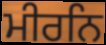
ਮੀਰਨਿ